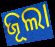
ଜୂଲା